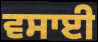
ਵਸਾਈ